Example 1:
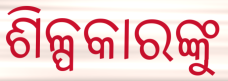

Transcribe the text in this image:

ଶିଳ୍ପକାରଙ୍କୁ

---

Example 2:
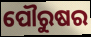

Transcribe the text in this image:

ପୌରୁଷର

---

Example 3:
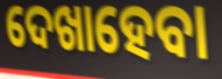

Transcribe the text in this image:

ଦେଖାହେବା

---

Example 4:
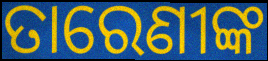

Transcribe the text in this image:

ତାରେଣୀଙ୍କ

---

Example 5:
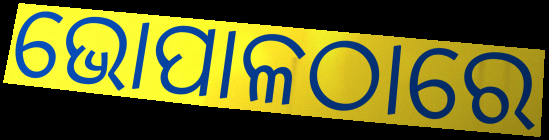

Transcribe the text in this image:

ଭୋପାଳଠାରେ